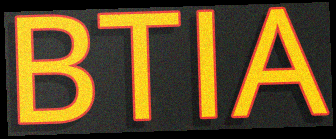
BTIA